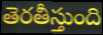
తెరతీస్తుంది